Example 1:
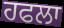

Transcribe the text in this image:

ਹਫਲਾ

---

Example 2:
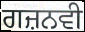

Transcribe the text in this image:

ਗਜ਼ਨਵੀ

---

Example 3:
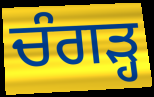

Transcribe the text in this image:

ਚੰਗੜ੍ਹ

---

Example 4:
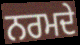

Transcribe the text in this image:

ਨਰਮਦੇ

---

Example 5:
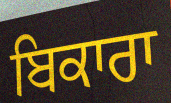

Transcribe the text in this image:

ਬਿਕਾਰਾ